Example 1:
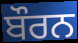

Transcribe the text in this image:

ਬੌਰਨ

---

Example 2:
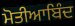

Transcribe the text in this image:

ਮੋਤੀਆਬਿੰਦ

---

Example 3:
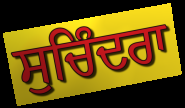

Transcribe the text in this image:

ਸੁਚਿੰਦਰਾ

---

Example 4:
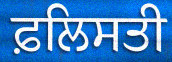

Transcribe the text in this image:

ਫ਼ਲਿਸਤੀ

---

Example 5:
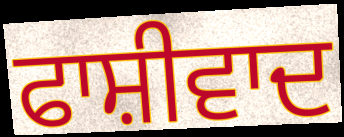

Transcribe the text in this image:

ਫਾਸ਼ੀਵਾਦ